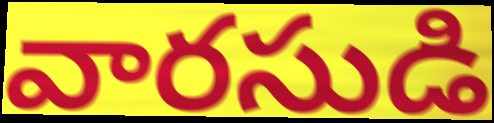
వారసుడి